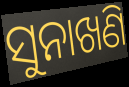
ସୁନାଖଣି